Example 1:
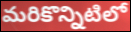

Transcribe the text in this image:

మరికొన్నిటిలో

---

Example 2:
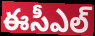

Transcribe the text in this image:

ఈసీఎల్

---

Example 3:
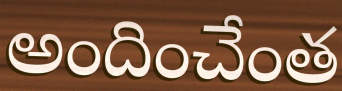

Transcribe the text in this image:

అందించేంత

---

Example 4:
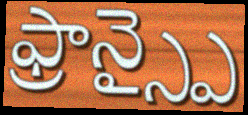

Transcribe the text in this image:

ఫ్రాన్స్పై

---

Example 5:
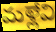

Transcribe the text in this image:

మళ్లేవి